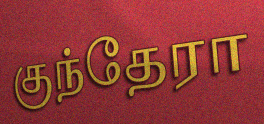
குந்தேரா